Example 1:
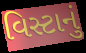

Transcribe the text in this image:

વિસ્ટાનું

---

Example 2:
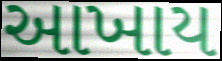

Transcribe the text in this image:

આખાય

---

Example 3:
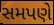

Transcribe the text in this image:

સમપણે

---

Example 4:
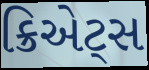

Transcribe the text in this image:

ક્રિએટ્સ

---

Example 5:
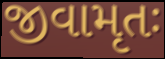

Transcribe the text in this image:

જીવામૃતઃ